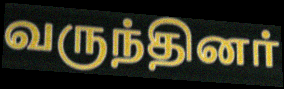
வருந்தினர்